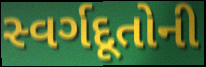
સ્વર્ગદૂતોની